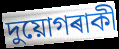
দুয়োগৰাকী